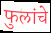
फुलांचे